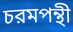
চরমপন্থী